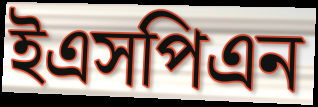
ইএসপিএন